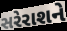
સરેરાશને